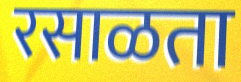
रसाळता